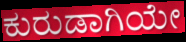
ಕುರುಡಾಗಿಯೇ